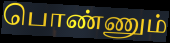
பொண்ணும்